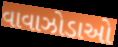
વાવાઝોડાઓ